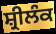
ਸ਼੍ਰੀਲੰਕ